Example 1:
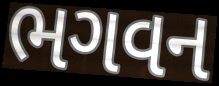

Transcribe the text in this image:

ભગવન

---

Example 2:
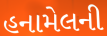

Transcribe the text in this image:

હનામેલની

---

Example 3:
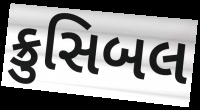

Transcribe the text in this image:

ક્રુસિબલ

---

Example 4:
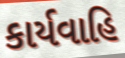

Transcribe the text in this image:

કાર્યવાહિ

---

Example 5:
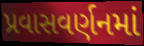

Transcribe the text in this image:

પ્રવાસવર્ણનમાં